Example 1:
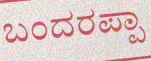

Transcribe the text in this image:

ಬಂದರಪ್ಪಾ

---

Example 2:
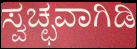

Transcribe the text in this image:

ಸ್ವಚ್ಛವಾಗಿಡಿ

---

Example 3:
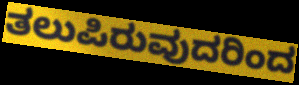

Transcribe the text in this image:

ತಲುಪಿರುವುದರಿಂದ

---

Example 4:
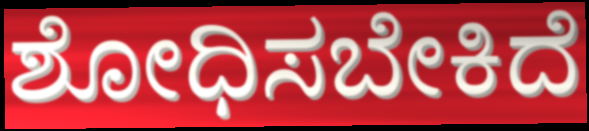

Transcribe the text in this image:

ಶೋಧಿಸಬೇಕಿದೆ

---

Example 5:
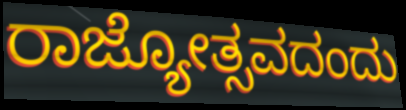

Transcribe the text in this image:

ರಾಜ್ಯೋತ್ಸವದಂದು